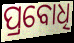
ପ୍ରବୋଧି